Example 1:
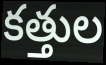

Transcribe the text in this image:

కత్తుల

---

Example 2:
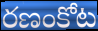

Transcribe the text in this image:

రణంకోట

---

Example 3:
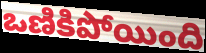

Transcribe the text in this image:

ఒణికిపోయింది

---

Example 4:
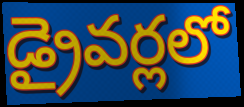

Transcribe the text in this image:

డ్రైవర్లలో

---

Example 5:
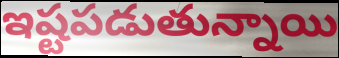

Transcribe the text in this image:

ఇష్టపడుతున్నాయి